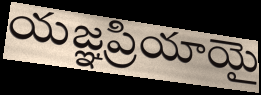
యజ్ఞప్రియాయై